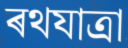
ৰথযাত্ৰা